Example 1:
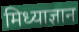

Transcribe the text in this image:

मिध्याज्ञान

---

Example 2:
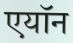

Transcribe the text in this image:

एयॉन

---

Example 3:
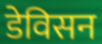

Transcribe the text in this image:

डेविसन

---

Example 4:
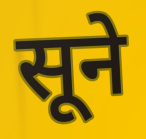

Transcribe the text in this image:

सूने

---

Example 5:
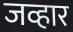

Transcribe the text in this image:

जव्हार